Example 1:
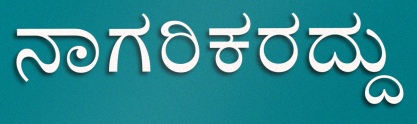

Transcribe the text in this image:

ನಾಗರಿಕರದ್ದು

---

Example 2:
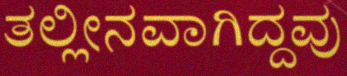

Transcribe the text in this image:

ತಲ್ಲೀನವಾಗಿದ್ದವು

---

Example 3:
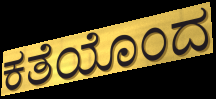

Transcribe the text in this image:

ಕತೆಯೊಂದ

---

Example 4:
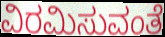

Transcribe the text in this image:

ವಿರಮಿಸುವಂತೆ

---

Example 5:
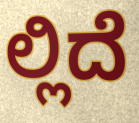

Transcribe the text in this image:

ಲ್ಲಿದೆ